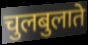
चुलबुलाते